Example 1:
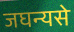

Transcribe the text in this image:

जघन्यसे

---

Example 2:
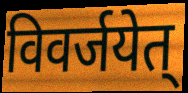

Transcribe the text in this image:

विवर्जयेत्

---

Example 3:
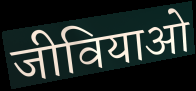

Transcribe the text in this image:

जीवियाओ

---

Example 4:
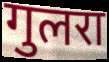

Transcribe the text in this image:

गुलरा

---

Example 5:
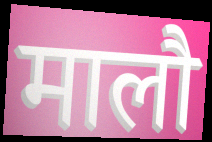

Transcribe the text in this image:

मालौ